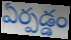
ఏర్పడ్డం